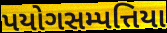
પયોગસમ્પત્તિયા